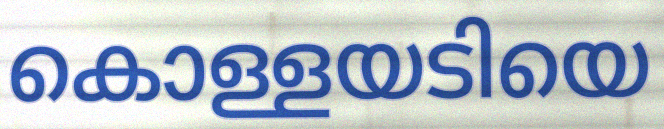
കൊള്ളയടിയെ